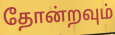
தோன்றவும்